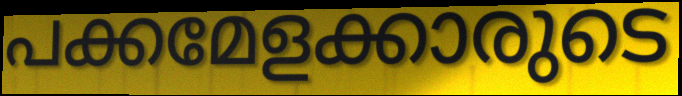
പക്കമേളക്കാരുടെ